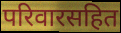
परिवारसहित